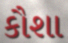
કૌશા